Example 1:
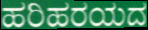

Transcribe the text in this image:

ಹರಿಹರಯದ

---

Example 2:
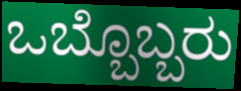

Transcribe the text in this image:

ಒಬ್ಬೊಬ್ಬರು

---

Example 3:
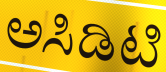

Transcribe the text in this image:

ಅಸಿಡಿಟಿ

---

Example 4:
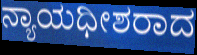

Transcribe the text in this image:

ನ್ಯಾಯಧೀಶರಾದ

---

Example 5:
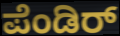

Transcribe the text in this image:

ಪೆಂಡಿರ್